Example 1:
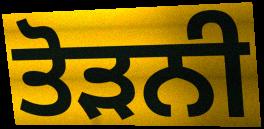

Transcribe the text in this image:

ਤੋੜਨੀ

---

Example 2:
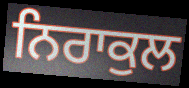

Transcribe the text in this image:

ਨਿਰਾਕੁਲ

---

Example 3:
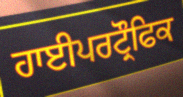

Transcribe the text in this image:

ਹਾਈਪਰਟ੍ਰੌਫਿਕ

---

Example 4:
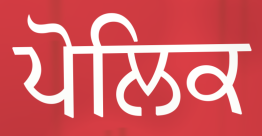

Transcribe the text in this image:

ਪੋਲਿਕ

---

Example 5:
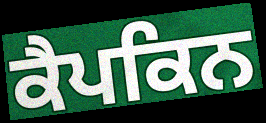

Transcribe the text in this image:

ਕੈਪਕਿਨ